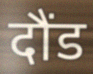
दौंड